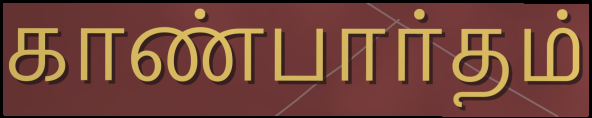
காண்பார்தம்